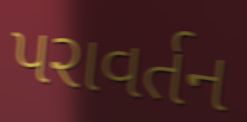
પરાવર્તન